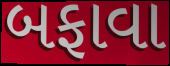
બફાવા